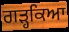
ਗੜ੍ਹਕਿਆ